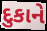
દુકાને